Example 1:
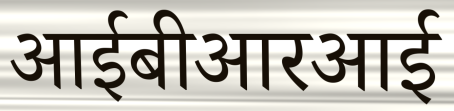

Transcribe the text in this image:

आईबीआरआई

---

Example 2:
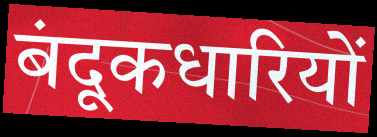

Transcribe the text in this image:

बंदूकधारियों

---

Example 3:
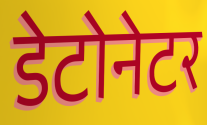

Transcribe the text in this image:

डेटोनेटर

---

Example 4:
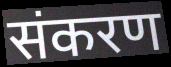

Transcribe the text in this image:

संकरण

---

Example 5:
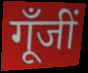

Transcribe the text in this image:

गूँजीं